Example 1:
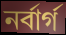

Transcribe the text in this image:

নর্বার্গ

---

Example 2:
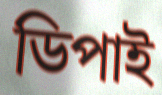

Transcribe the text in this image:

ডিপাই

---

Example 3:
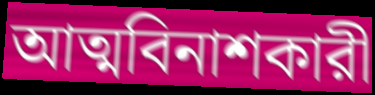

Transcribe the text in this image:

আত্মবিনাশকারী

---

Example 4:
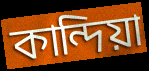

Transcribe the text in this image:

কান্দিয়া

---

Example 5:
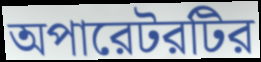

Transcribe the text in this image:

অপারেটরটির